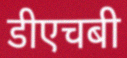
डीएचबी